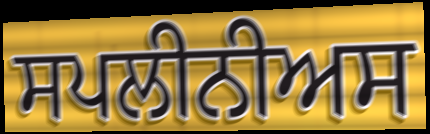
ਸਪਲੀਨੀਅਸ